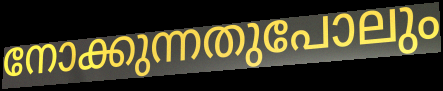
നോക്കുന്നതുപോലും